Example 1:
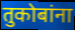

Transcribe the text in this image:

तुकोबांना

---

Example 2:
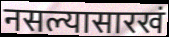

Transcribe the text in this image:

नसल्यासारखं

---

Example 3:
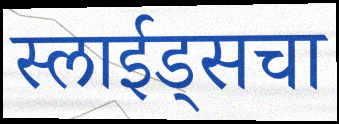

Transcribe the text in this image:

स्लाईड्सचा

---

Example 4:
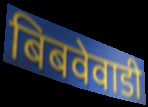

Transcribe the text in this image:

बिबवेवाडी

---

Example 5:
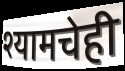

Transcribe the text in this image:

श्यामचेही